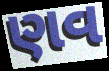
ણવ